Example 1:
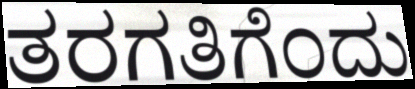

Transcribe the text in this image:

ತರಗತಿಗೆಂದು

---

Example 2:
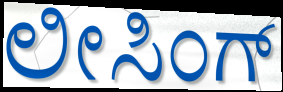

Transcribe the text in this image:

ಲೀಸಿಂಗ್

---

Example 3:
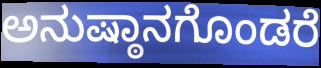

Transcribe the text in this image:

ಅನುಷ್ಠಾನಗೊಂಡರೆ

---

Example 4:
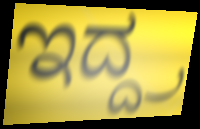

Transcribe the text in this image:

ಇದ್ದ್ರ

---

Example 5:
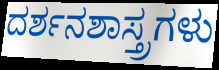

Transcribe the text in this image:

ದರ್ಶನಶಾಸ್ತ್ರಗಳು